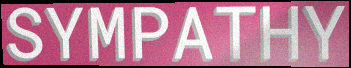
SYMPATHY